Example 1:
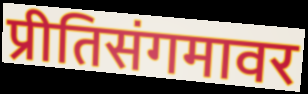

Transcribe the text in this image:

प्रीतिसंगमावर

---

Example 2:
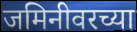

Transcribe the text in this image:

जमिनीवरच्या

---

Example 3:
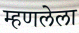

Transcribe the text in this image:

म्हणलेला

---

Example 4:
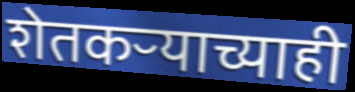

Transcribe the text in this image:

शेतकऱ्याच्याही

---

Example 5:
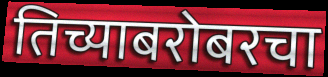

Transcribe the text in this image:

तिच्याबरोबरचा